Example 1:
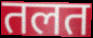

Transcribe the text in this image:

तलत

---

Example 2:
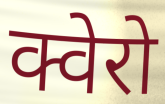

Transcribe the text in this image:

क्वेरो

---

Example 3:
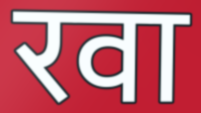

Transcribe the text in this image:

रवा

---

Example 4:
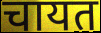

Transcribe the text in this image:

चायत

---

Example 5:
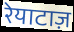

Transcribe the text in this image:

रेयाटाज़